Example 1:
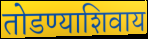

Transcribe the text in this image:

तोडण्याशिवाय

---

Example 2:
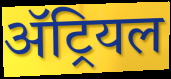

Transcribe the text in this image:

ॲट्रियल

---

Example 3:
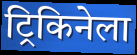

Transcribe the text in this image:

ट्रिकिनेला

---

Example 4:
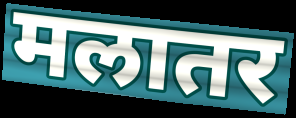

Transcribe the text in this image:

मलातर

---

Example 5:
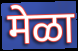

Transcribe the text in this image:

मेळा